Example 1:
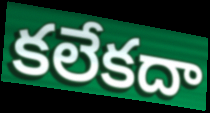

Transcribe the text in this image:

కలేకదా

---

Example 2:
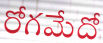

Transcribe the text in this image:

రోగమేదో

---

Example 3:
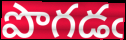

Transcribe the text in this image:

పొగడఁ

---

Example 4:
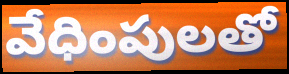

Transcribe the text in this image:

వేధింపులతో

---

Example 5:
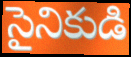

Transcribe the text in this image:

సైనికుడి